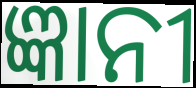
ଜ୍ଞାନୀ